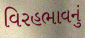
વિરહભાવનું